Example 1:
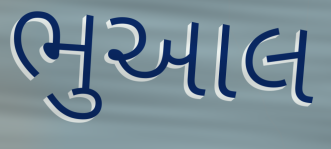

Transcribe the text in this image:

ભુઆલ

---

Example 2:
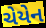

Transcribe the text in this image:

ચેયેન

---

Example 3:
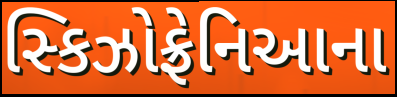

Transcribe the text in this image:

સ્કિઝોફ્રેનિઆના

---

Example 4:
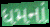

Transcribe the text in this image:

ધમનાં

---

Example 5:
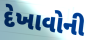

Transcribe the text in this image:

દેખાવોની